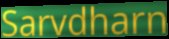
Sarvdharn